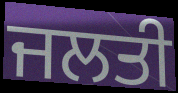
ਜਲਤੀ